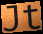
Jt